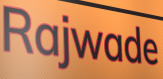
Rajwade